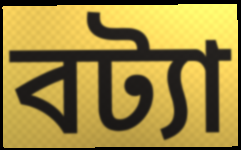
বট্যা